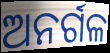
ଅନର୍ଗଳ